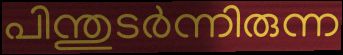
പിന്തുടർന്നിരുന്ന